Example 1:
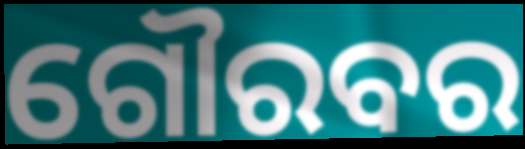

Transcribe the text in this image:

ଗୌରବର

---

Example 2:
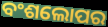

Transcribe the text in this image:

ବଂଶଲୋପର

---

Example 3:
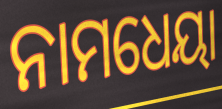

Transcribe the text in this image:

ନାମଧେୟା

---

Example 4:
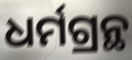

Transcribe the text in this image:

ଧର୍ମଗ୍ରନ୍ଥ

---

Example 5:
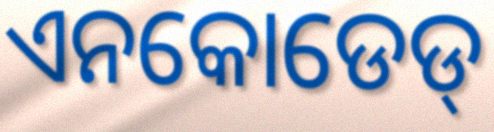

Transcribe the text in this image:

ଏନକୋଡେଡ୍